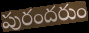
పురందరుం